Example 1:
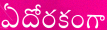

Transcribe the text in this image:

ఏదోరకంగా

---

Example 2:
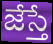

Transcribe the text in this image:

జేస్తే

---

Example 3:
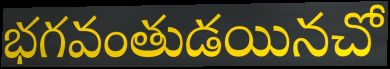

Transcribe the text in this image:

భగవంతుడయినచో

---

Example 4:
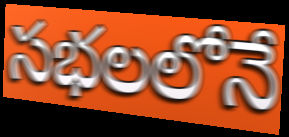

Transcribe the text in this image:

సభలలోనే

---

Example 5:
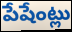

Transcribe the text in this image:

పేషేంట్లు